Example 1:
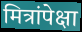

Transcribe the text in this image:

मित्रांपेक्षा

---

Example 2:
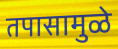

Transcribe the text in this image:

तपासामुळे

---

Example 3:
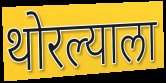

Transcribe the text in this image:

थोरल्याला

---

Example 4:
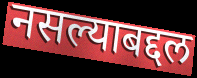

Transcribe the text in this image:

नसल्याबद्दल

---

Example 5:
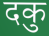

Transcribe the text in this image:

दकु